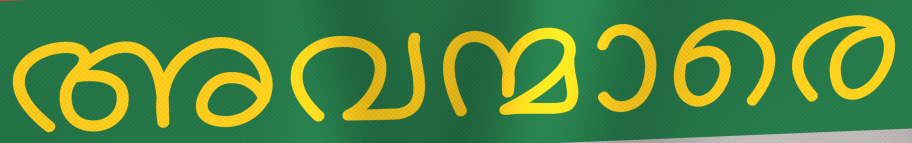
അവന്മാരെ